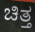
ಚಿತ್ತ